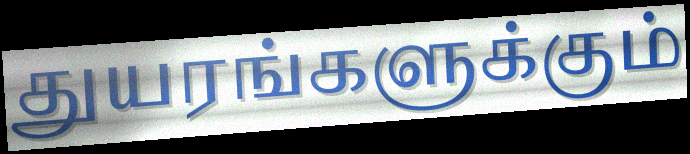
துயரங்களுக்கும்